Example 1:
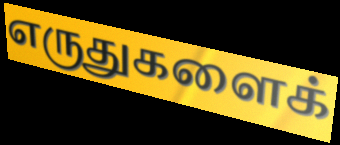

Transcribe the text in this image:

எருதுகளைக்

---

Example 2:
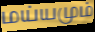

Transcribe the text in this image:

மய்யமும்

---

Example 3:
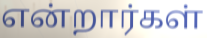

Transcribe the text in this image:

என்றார்கள்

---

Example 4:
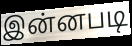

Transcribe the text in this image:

இன்னபடி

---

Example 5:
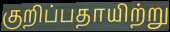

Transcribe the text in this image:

குறிப்பதாயிற்று